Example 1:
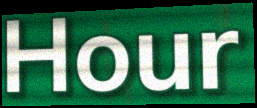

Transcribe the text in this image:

Hour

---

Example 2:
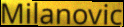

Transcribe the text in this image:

Milanovic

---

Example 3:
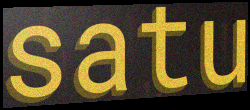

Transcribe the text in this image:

satu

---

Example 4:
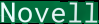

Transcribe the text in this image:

Novell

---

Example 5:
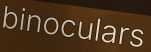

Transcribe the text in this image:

binoculars